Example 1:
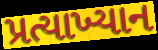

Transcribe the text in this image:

પ્રત્યાખ્યાન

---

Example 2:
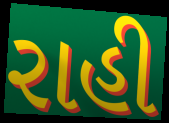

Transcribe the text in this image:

રાહી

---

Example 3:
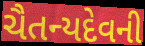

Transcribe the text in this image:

ચૈતન્યદેવની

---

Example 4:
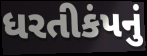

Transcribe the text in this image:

ધરતીકંપનું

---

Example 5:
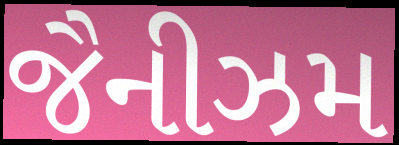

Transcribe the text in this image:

જૈનીઝમ